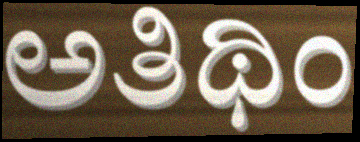
ಅತಿಥಿಂ